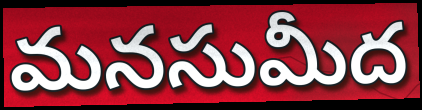
మనసుమీద